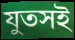
যুতসই